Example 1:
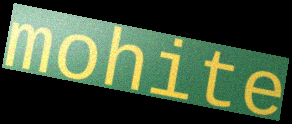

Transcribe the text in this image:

mohite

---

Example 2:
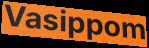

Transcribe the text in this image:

Vasippom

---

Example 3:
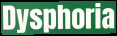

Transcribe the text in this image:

Dysphoria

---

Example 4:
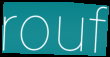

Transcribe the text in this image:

rouf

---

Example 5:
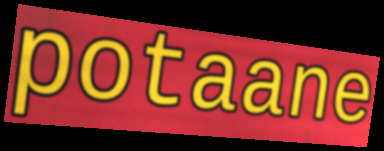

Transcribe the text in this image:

potaane